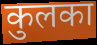
कुलका